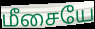
மீசையே